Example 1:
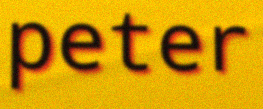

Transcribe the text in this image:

peter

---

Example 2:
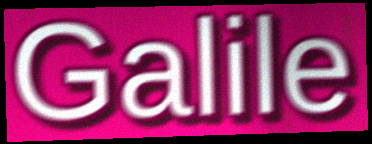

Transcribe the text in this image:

Galile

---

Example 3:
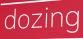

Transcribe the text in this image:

dozing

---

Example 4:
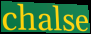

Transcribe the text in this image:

chalse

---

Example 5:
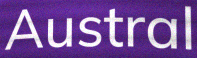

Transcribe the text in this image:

Austral